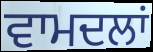
ਵਾਮਦਲਾਂ